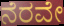
ನೆರವೇ